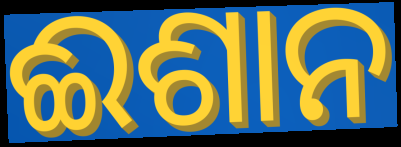
ଈଶାନ